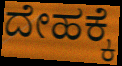
ದೇಹಕ್ಕೆ